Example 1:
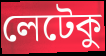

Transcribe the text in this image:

লেটেকু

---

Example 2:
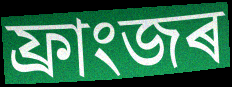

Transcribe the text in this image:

ফ্ৰাংজৰ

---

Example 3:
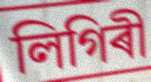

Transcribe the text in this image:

লিগিৰী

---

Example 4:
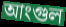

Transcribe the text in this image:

আংগুল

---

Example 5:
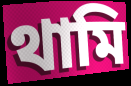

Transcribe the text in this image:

থামি